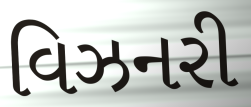
વિઝનરી